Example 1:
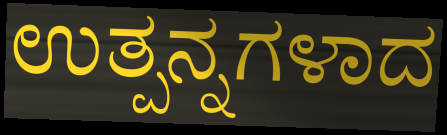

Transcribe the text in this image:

ಉತ್ಪನ್ನಗಳಾದ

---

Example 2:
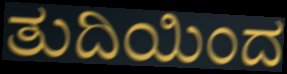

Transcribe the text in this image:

ತುದಿಯಿಂದ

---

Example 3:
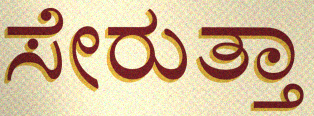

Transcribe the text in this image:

ಸೇರುತ್ತಾ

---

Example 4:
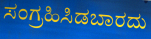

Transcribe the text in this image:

ಸಂಗ್ರಹಿಸಿಡಬಾರದು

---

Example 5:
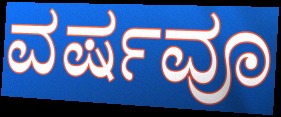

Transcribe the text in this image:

ವರ್ಷವೂ